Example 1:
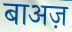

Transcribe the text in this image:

बाअज़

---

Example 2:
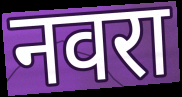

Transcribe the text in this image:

नवरा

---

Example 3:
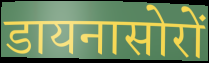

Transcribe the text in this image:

डायनासोरों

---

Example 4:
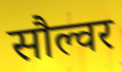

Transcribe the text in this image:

सौल्वर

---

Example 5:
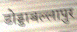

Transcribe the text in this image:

डोड्डाबल्लापुर